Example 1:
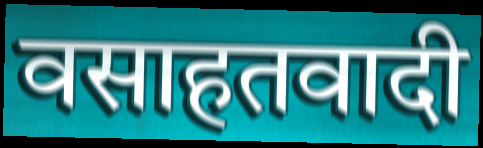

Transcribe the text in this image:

वसाहतवादी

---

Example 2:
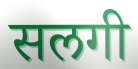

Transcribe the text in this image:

सलगी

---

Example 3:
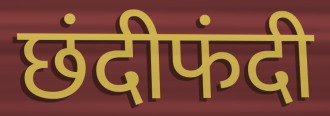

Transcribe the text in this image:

छंदीफंदी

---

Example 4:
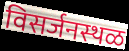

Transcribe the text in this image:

विसर्जनस्थळ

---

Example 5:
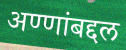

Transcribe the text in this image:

अण्णांबद्दल